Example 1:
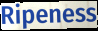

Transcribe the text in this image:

Ripeness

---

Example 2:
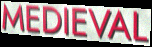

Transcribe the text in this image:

MEDIEVAL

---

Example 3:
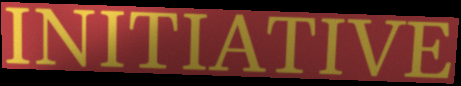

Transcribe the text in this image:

INITIATIVE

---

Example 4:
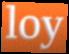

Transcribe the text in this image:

loy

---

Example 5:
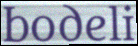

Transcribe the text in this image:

bodeli